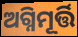
ଅଗ୍ନିମୂର୍ତ୍ତି